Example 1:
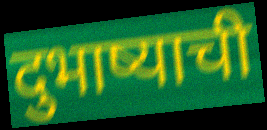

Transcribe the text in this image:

दुभाष्याची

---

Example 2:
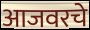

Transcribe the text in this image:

आजवरचे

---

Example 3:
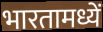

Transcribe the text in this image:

भारतामध्यें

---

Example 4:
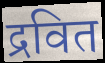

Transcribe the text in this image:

द्रवित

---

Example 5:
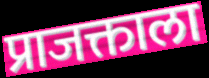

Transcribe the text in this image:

प्राजक्ताला